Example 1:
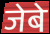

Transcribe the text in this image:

जेबे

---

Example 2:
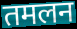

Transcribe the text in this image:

तमलन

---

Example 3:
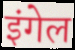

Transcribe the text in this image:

इंगेल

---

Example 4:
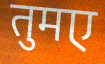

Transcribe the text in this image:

तुमए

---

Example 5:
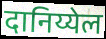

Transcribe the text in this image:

दानिय्येल